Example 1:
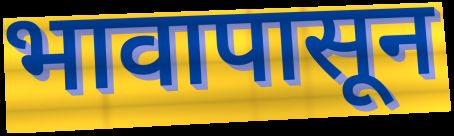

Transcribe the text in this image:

भावापासून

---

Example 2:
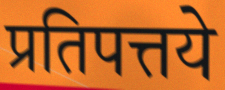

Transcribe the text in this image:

प्रतिपत्तये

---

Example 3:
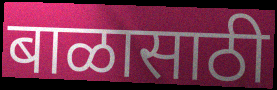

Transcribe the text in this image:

बाळासाठी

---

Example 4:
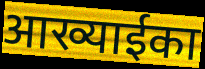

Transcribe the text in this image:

आख्याईका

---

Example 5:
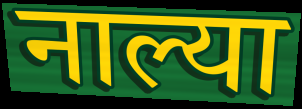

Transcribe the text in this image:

नाल्या